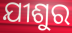
ଯୀଶୁର